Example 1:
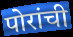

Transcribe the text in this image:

पोरांची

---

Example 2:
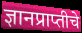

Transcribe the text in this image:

ज्ञानप्राप्तीचे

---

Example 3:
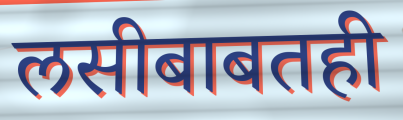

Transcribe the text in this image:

लसीबाबतही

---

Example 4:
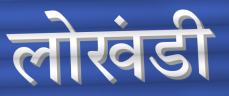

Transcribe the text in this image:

लोखंडी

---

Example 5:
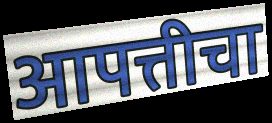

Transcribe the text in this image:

आपत्तीचा